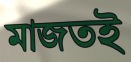
মাজতই